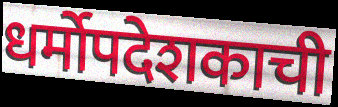
धर्मोपदेशकाची